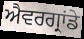
ਐਵਰਗ੍ਰਾਂਡੇ